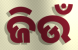
ଜିଉଁ